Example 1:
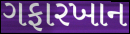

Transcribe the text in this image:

ગફારખાન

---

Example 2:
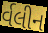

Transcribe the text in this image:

ર્વલીન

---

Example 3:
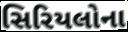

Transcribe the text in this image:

સિરિયલોના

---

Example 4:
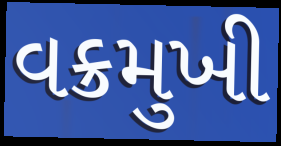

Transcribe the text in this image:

વક્રમુખી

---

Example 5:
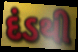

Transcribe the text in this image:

દંડથી